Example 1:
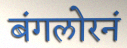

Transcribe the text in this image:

बंगलोरनं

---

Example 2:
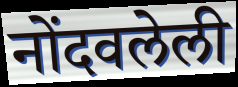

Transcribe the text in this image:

नोंदवलेली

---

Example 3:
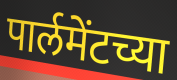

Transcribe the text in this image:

पार्लमेंटच्या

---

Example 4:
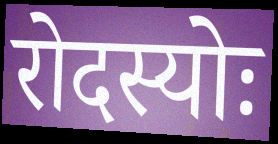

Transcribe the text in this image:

रोदस्योः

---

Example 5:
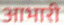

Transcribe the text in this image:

आभारी